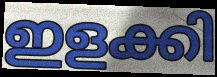
ഇളക്കി